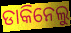
ଡାକିନେଲୁ